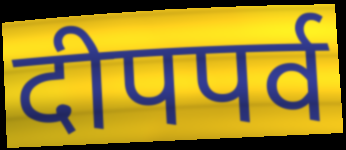
दीपपर्व